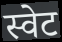
स्वेट